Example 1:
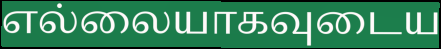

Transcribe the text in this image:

எல்லையாகவுடைய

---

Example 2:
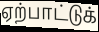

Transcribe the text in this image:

ஏற்பாட்டுக்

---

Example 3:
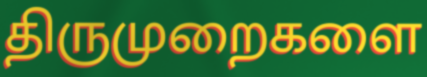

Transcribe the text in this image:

திருமுறைகளை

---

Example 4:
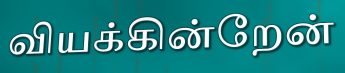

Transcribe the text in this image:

வியக்கின்றேன்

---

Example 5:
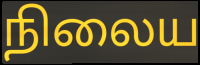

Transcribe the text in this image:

நிலைய